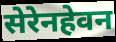
सेरेनहेवन